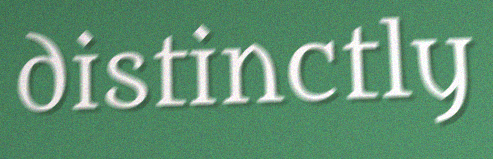
distinctly